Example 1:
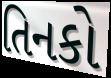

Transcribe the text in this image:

તિનકો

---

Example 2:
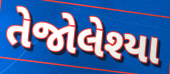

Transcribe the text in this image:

તેજોલેશ્યા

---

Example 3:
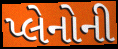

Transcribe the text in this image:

પ્લેનોની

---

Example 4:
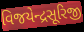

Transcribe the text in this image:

વિજયેન્દ્રસૂરિજી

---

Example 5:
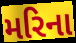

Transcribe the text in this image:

મરિના